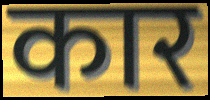
कार